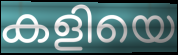
കളിയെ